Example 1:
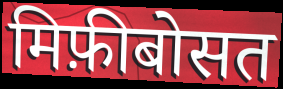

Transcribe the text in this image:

मिफ़ीबोसत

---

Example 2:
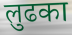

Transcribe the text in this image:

लुढका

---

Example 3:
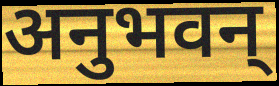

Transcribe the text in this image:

अनुभवन्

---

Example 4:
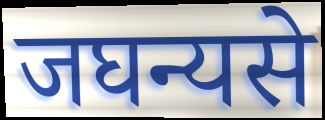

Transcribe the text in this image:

जघन्यसे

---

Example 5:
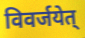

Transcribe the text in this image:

विवर्जयेत्